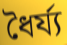
ধৈৰ্য্য